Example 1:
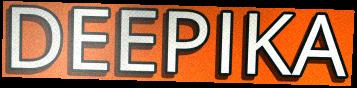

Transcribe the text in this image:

DEEPIKA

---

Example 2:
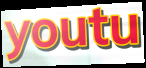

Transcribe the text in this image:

youtu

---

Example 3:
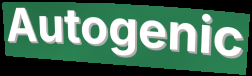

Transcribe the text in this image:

Autogenic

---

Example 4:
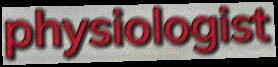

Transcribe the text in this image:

physiologist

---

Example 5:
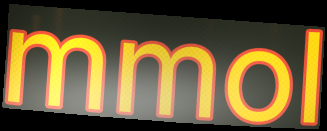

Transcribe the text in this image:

mmol